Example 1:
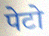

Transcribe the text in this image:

पेटो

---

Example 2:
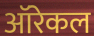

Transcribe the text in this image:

ऑरेकल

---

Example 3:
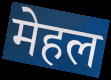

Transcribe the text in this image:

मेहल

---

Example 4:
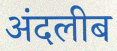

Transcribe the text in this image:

अंदलीब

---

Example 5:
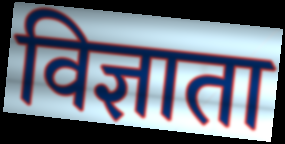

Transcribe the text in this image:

विज्ञाता